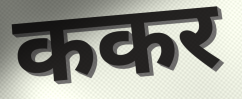
ककर